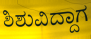
ಶಿಶುವಿದ್ದಾಗ